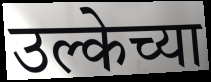
उल्केच्या